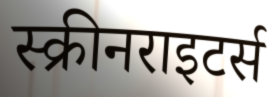
स्क्रीनराइटर्स